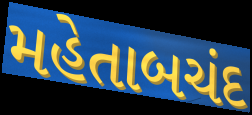
મહેતાબચંદ